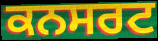
ਕਨਸਰਟ